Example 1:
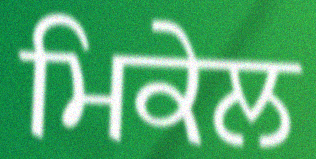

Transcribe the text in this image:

ਮਿਕੇਲ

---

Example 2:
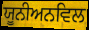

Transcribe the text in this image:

ਯੂਨੀਅਨਵਿਲ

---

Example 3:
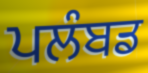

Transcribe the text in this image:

ਪਲੰਬਡ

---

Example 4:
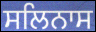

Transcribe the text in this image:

ਸਲਿਨਾਸ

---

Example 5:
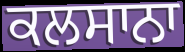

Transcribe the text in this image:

ਕਲਸਾਨਾ